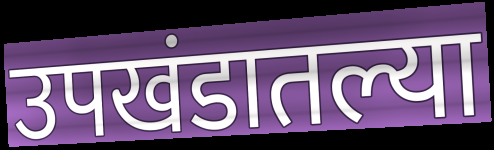
उपखंडातल्या